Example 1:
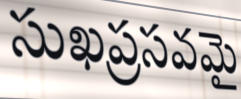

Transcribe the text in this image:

సుఖప్రసవమై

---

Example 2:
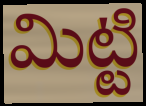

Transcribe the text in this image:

మిట్టి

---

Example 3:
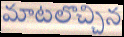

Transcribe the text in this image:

మాటలొచ్చిన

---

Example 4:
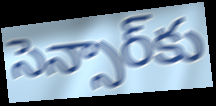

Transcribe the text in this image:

సెన్సార్‌కు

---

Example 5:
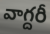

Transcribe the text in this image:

వాగ్దరీ